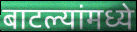
बाटल्यांमध्ये